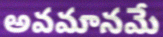
అవమానమే